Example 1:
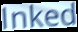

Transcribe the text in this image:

Inked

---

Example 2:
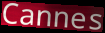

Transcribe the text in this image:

Cannes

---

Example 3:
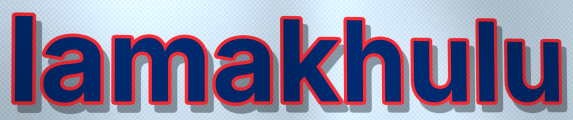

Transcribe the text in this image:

lamakhulu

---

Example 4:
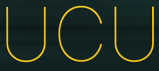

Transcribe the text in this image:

UCU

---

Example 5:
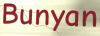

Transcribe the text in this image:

Bunyan